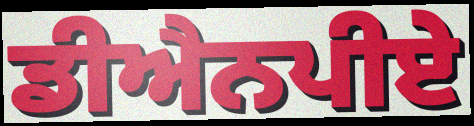
ਡੀਐਨਪੀਏ